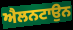
ਐਲਨਟਾਉਨ